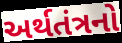
અર્થતંત્રનો